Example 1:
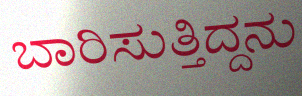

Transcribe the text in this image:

ಬಾರಿಸುತ್ತಿದ್ದನು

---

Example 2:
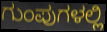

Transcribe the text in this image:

ಗುಂಪುಗಳಲ್ಲಿ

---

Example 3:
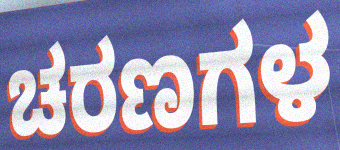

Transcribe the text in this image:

ಚರಣಗಳ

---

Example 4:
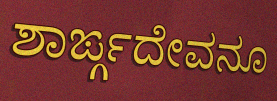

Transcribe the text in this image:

ಶಾರ್ಙ್ಗದೇವನೂ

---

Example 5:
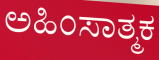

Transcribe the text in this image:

ಅಹಿಂಸಾತ್ಮಕ